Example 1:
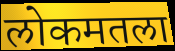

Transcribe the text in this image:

लोकमतला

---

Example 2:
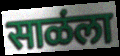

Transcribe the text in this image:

साळंला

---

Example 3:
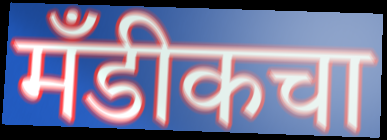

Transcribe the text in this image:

मँडीकचा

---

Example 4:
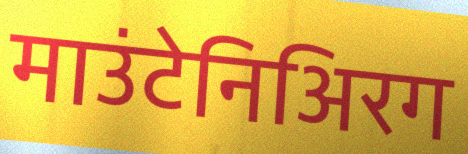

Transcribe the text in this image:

माउंटेनिअिरग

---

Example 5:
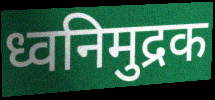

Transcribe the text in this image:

ध्वनिमुद्रक